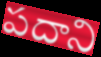
పదాని